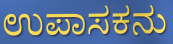
ಉಪಾಸಕನು